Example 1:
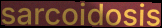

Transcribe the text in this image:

sarcoidosis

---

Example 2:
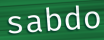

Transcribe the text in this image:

sabdo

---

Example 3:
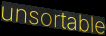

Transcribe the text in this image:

unsortable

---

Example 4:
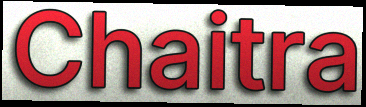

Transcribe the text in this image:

Chaitra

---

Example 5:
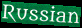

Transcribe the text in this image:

Russian